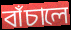
বাঁচালে